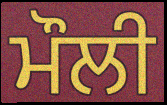
ਮੌਲੀ